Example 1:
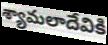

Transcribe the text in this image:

శ్యామలాదేవికి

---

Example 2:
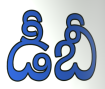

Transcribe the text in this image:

డీబీ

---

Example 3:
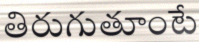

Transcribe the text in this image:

తిరుగుతూంటే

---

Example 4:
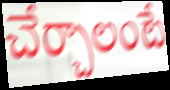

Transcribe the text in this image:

చేర్చాలంటే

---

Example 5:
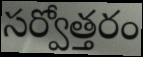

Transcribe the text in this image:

సర్వోత్తరం